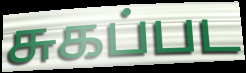
சுகப்பட